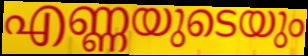
എണ്ണയുടെയും